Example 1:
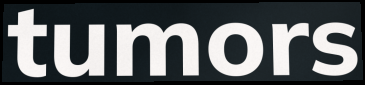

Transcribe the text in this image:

tumors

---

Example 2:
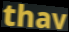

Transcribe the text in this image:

thav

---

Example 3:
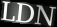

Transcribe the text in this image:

LDN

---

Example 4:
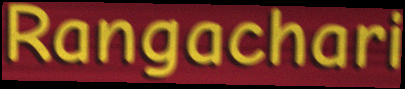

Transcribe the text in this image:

Rangachari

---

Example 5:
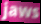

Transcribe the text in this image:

jaws